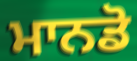
ਮਾਨਡੋ